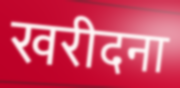
खरीदना